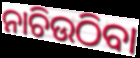
ନାଚିଉଠିବା